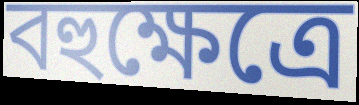
বহুক্ষেত্রে